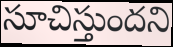
సూచిస్తుందని